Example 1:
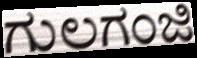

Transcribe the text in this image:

ಗುಲಗಂಜಿ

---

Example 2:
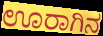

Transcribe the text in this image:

ಊರಾಗಿನ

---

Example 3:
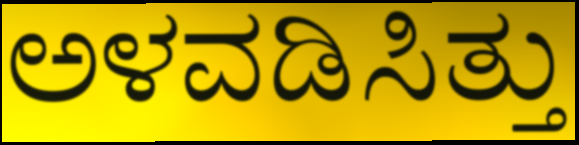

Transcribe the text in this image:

ಅಳವಡಿಸಿತ್ತು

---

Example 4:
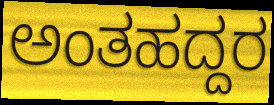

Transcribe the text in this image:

ಅಂತಹದ್ದರ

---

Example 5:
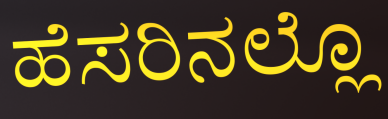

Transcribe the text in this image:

ಹೆಸರಿನಲ್ಲೊ